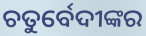
ଚତୁର୍ବେଦୀଙ୍କର